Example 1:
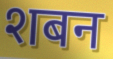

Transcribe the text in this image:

शबन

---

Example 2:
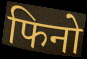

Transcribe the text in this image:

फिनो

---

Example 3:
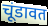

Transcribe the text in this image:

चूंडावत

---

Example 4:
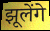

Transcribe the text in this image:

झूलेंगे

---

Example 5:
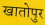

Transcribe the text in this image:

खातोपुर